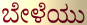
ಬೇಳೆಯು